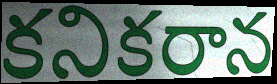
కనికరాన